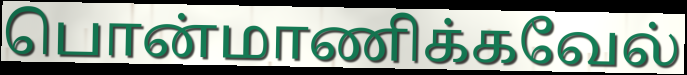
பொன்மாணிக்கவேல்